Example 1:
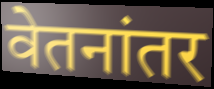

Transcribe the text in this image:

वेतनांतर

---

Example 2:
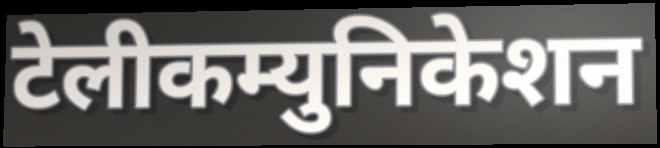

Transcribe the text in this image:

टेलीकम्युनिकेशन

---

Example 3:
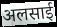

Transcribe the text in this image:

अलसाई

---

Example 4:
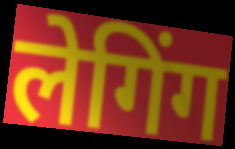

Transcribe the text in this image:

लेगिंग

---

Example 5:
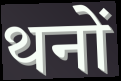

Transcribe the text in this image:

थनों